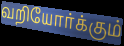
வறியோர்க்கும்